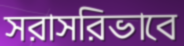
সরাসরিভাবে